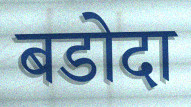
बडोदा